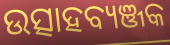
ଉତ୍ସାହବ୍ୟଞ୍ଜକ